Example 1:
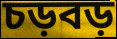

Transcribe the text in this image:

চড়বড়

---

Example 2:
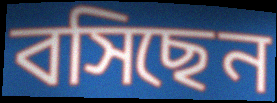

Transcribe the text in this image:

বসিছেন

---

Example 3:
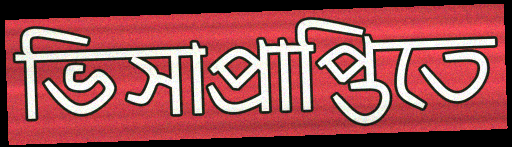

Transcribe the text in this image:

ভিসাপ্রাপ্তিতে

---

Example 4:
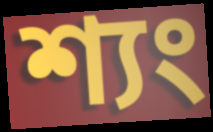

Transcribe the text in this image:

শ্যং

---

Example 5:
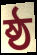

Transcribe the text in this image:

ষ্ঠ